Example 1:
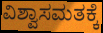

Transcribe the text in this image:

ವಿಶ್ವಾಸಮತಕ್ಕೆ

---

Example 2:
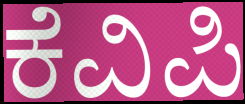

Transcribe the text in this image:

ಕೆವಿಪಿ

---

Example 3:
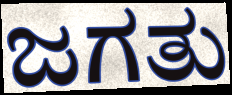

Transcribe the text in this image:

ಜಗತು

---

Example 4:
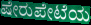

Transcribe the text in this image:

ಷೇರುಪೇಟೆಯ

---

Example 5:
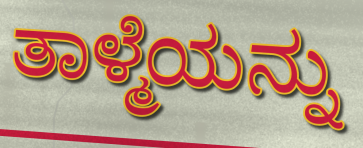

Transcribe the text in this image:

ತಾಳ್ಮೆಯನ್ನು